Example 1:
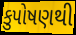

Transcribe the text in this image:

કુપોષણથી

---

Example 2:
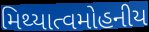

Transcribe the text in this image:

મિથ્યાત્વમોહનીય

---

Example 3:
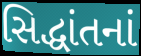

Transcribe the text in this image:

સિદ્ધાંતનાં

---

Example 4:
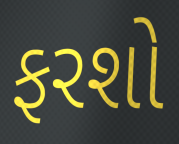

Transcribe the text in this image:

ફરશો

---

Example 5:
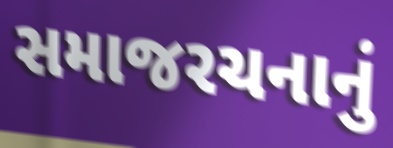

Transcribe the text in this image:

સમાજરચનાનું